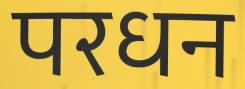
परधन